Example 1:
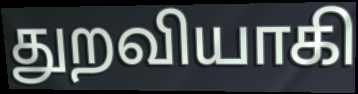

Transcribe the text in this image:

துறவியாகி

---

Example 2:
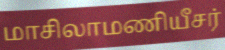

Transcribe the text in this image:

மாசிலாமணியீசர்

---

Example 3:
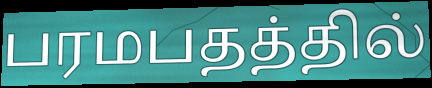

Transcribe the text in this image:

பரமபதத்தில்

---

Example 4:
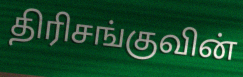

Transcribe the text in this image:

திரிசங்குவின்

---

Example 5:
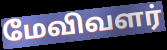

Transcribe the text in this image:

மேவிவளர்